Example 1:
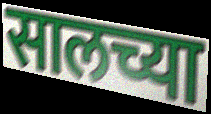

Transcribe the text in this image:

सालच्या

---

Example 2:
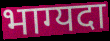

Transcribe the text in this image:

भाग्यदा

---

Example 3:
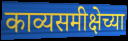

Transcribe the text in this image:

काव्यसमीक्षेच्या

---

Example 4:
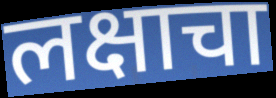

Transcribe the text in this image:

लक्षाचा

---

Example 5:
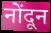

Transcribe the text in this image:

नोंदून